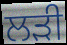
ਲਡ਼ੀ